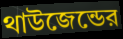
থাউজেন্ডের